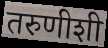
तरुणीशी